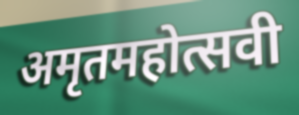
अमृतमहोत्सवी